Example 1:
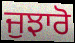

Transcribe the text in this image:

ਜੁਝਾਰੋ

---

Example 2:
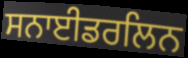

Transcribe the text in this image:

ਸਨਾਈਡਰਲਿਨ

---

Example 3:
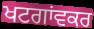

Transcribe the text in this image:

ਖਟਗਾਂਵਕਰ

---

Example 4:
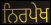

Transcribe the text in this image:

ਨਿਰਪੇਖ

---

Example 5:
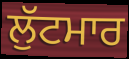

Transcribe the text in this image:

ਲੁੱਟਮਾਰ